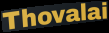
Thovalai